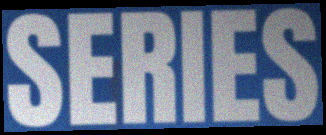
SERIES